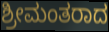
ಶ್ರೀಮಂತರಾದ